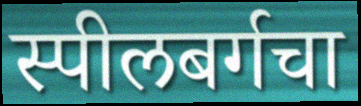
स्पीलबर्गचा